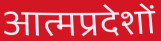
आत्मप्रदेशों